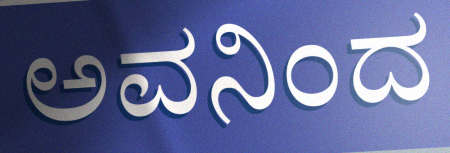
ಅವನಿಂದ